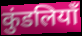
कुंडलियाँ